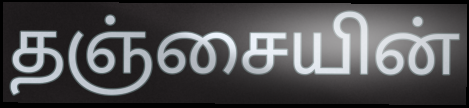
தஞ்சையின்